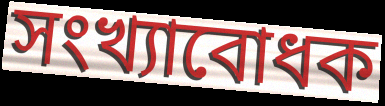
সংখ্যাবোধক